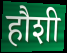
हौशी